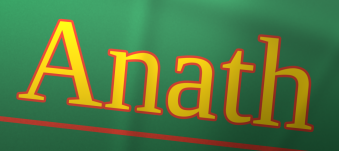
Anath